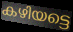
കഴിയട്ടെ